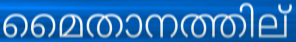
മൈതാനത്തില്